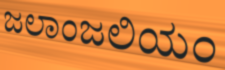
ಜಲಾಂಜಲಿಯಂ